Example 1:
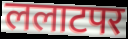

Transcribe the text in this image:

ललाटपर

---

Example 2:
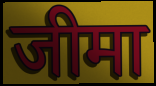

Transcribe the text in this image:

जीमा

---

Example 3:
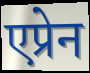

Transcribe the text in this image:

एप्रेन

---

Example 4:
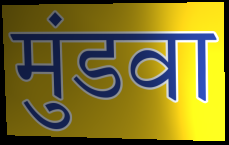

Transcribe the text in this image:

मुंडवा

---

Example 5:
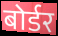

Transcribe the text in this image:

बोर्डर